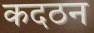
कदठन